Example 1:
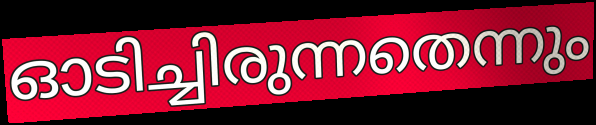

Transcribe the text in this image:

ഓടിച്ചിരുന്നതെന്നും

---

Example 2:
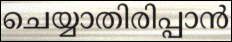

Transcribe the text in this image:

ചെയ്യാതിരിപ്പാൻ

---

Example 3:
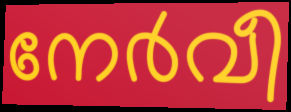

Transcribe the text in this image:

നേർവീ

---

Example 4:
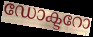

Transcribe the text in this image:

ഡോക്ടറോ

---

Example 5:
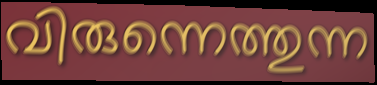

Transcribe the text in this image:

വിരുന്നെത്തുന്ന